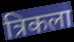
त्रिकला